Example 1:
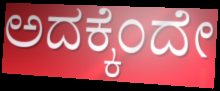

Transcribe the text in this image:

ಅದಕ್ಕೆಂದೇ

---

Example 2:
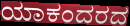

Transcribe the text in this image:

ಯಾಕಂದರದ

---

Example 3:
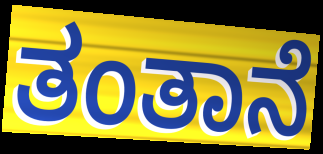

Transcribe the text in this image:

ತಂತಾನೆ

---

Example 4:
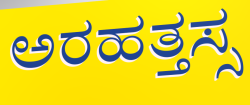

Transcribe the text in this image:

ಅರಹತ್ತಸ್ಸ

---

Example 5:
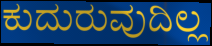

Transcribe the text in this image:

ಕುದುರುವುದಿಲ್ಲ